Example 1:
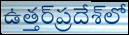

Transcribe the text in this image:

ఉత్తర్‌ప్రదేశ్‌లో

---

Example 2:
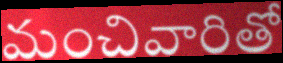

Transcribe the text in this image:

మంచివారితో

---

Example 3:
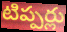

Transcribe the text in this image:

టిప్పర్లు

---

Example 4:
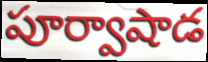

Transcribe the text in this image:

పూర్వాషాడ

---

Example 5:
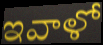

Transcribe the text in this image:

ఇవాళో